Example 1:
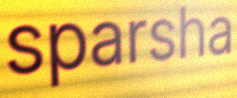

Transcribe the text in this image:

sparsha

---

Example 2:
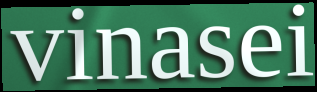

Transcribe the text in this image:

vinasei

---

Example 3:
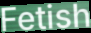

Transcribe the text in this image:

Fetish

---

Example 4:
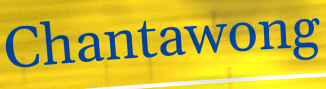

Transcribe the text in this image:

Chantawong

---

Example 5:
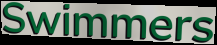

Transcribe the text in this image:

Swimmers